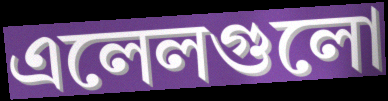
এলেলগুলো